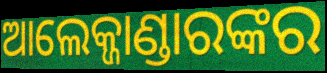
ଆଲେକ୍ଜାଣ୍ଡାରଙ୍କର